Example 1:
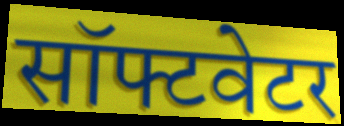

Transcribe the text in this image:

सॉफ्टवेटर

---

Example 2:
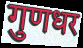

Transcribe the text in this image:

गुणधर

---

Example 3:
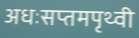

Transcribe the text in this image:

अधःसप्तमपृथ्वी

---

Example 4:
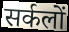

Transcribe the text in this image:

सर्कलों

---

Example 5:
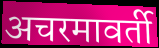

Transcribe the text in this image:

अचरमावर्ती